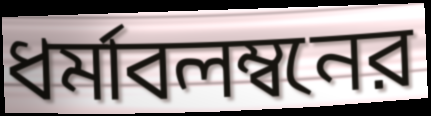
ধর্মাবলম্বনের